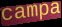
campa